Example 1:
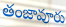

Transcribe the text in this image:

తంజావూరు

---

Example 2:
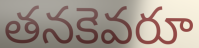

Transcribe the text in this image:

తనకెవరూ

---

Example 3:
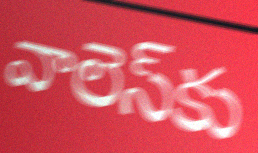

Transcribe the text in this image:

వాలెస్‌కు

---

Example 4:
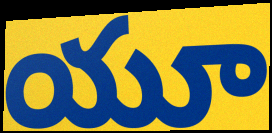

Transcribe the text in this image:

యూ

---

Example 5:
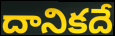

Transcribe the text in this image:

దానికదే